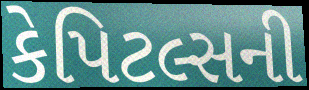
કેપિટલ્સની